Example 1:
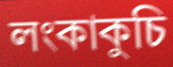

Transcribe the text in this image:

লংকাকুচি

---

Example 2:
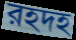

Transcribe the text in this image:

রহদহ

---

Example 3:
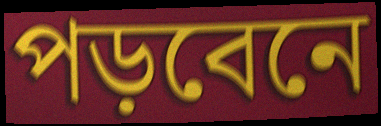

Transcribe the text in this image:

পড়বেনে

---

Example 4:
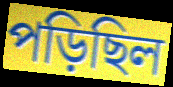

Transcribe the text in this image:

পড়িছিল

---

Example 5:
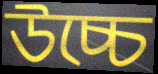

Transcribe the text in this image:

উচ্চে